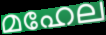
മഹേല